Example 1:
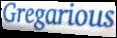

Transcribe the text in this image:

Gregarious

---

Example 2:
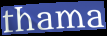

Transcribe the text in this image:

thama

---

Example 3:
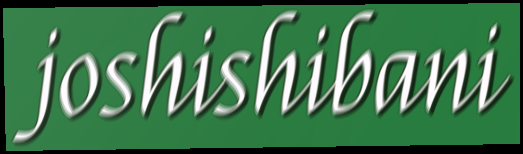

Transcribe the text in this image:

joshishibani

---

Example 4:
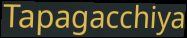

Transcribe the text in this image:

Tapagacchiya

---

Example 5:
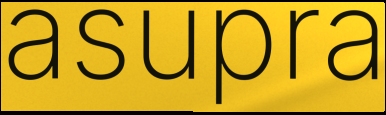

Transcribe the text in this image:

asupra